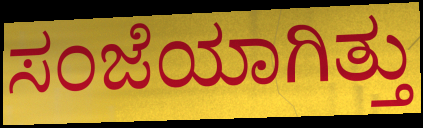
ಸಂಜೆಯಾಗಿತ್ತು